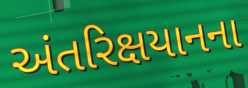
અંતરિક્ષયાનના